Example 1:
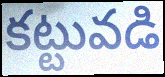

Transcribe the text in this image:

కట్టువడి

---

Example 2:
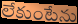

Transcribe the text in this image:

లేకుంటేను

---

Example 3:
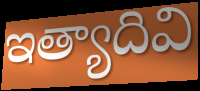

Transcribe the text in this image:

ఇత్యాదివి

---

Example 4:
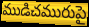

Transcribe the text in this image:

ముడిచమురుపై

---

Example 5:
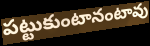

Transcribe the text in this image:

పట్టుకుంటానంటావు